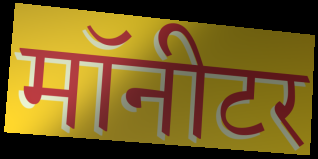
मॉनीटर